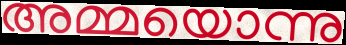
അമ്മയൊന്നു